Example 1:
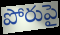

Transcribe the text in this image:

పోరుపై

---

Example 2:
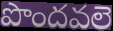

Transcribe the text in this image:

పొందవలె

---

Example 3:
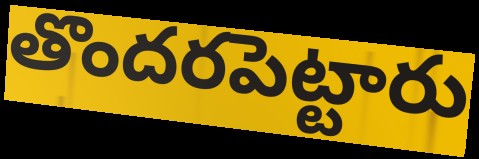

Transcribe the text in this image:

తొందరపెట్టారు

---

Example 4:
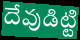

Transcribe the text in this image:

దేవుడిట్టి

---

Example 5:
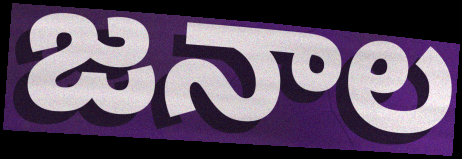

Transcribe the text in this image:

జనాల